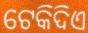
ଟେକିଦିଏ